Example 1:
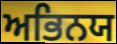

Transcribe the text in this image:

ਅਭਿਨਯ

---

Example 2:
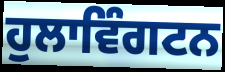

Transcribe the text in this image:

ਹੁਲਾਵਿੰਗਟਨ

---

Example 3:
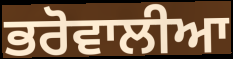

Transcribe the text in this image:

ਭਰੋਵਾਲੀਆ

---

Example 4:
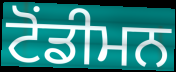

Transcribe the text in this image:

ਟੋਂਡੀਮਨ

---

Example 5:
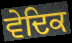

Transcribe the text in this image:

ਵੇਦਿਕ